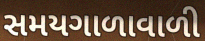
સમયગાળાવાળી